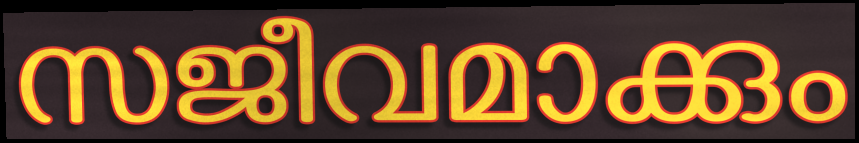
സജീവമാക്കും